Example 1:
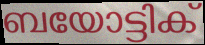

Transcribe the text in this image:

ബയോട്ടിക്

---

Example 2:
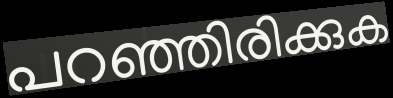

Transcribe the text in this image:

പറഞ്ഞിരിക്കുക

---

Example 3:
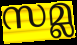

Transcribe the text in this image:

സമ്ല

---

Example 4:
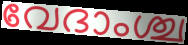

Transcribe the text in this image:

വേദാംശ്ച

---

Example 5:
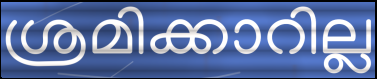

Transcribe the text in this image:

ശ്രമിക്കാറില്ല